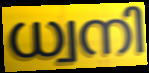
ധ്വനി